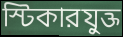
স্টিকারযুক্ত